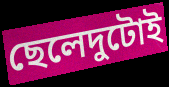
ছেলেদুটোই